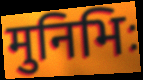
मुनिभिः